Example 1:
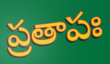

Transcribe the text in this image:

ప్రతాపః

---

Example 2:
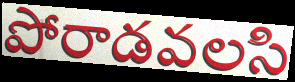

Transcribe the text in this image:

పోరాడవలసి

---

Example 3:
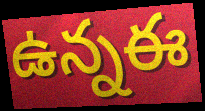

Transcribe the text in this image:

ఉన్నఈ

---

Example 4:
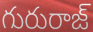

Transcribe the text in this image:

గురురాజ్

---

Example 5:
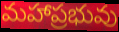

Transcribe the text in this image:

మహాప్రభువు